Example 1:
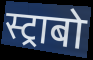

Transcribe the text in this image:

स्ट्राबो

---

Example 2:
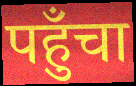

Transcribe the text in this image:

पहुँचा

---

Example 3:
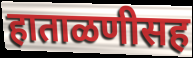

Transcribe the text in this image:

हाताळणीसह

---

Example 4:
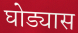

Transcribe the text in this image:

घोड्यास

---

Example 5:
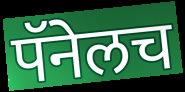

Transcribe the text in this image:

पॅनेलच